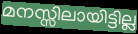
മനസ്സിലായിട്ടില്ല